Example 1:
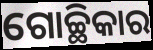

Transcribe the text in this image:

ଗୋଚ୍ଛିକାର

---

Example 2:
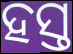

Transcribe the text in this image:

ହସ୍ତ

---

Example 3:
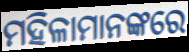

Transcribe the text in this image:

ମହିଳାମାନଙ୍କରେ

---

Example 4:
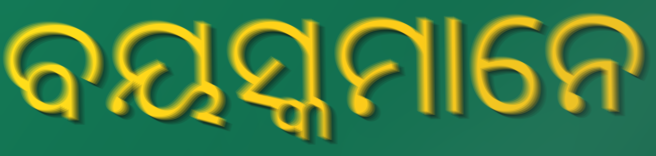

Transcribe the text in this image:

ବୟସ୍କମାନେ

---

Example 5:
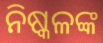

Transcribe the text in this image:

ନିଷ୍କଳଙ୍କ